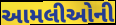
આમલીઓની